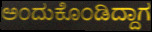
ಅಂದುಕೊಂಡಿದ್ದಾಗ